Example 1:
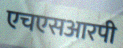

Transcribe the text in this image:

एचएसआरपी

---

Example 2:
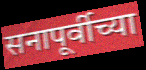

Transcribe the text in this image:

सनापूर्वीच्या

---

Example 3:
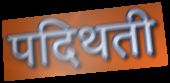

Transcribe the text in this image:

पदिथती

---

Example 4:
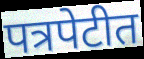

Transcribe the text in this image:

पत्रपेटीत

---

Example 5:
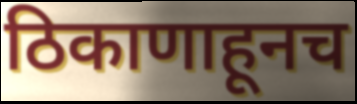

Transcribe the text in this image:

ठिकाणाहूनच